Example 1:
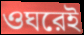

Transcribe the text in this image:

ওঘরেই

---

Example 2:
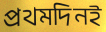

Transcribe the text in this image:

প্রথমদিনই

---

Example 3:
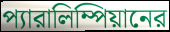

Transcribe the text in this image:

প্যারালিম্পিয়ানের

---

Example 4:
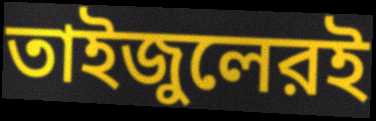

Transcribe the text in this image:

তাইজুলেরই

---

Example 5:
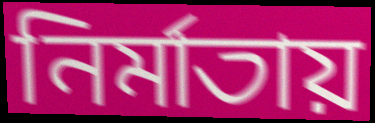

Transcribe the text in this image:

নির্মাতায়